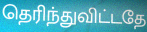
தெரிந்துவிட்டதே